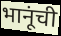
भानूंची